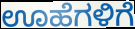
ಊಹೆಗಳಿಗೆ